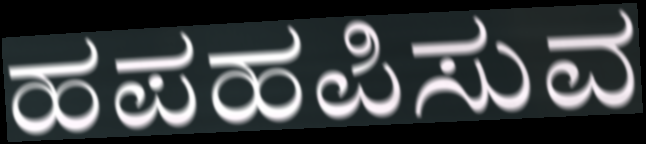
ಹಪಹಪಿಸುವ